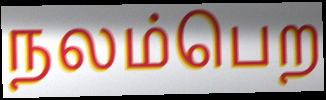
நலம்பெற